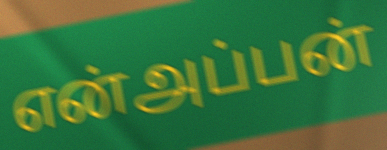
என்அப்பன்